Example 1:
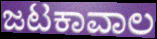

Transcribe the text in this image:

ಜಟಕಾವಾಲ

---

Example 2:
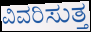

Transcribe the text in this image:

ವಿವರಿಸುತ್ತ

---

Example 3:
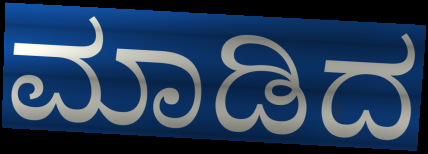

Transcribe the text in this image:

ಮಾಡಿದ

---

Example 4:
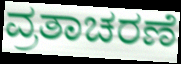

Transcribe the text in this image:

ವ್ರತಾಚರಣೆ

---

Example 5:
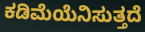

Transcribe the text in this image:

ಕಡಿಮೆಯೆನಿಸುತ್ತದೆ